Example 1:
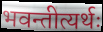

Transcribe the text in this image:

भवन्तीत्यर्थः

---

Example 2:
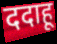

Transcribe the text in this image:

ददाहू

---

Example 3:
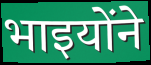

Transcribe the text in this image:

भाइयोंने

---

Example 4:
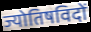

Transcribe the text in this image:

ज्योतिषविदों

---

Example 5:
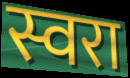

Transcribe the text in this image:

स्‍वरा